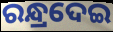
ରନ୍ଧ୍ରଦେଇ